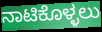
ನಾಟಿಕೊಳ್ಳಲು